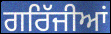
ਗਰਿੱਜੀਆਂ